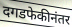
दगडफेकीनंतर